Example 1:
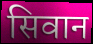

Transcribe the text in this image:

सिवान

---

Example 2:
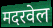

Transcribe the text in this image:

मदरवेल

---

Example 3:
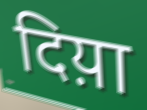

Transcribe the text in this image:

दिय़ा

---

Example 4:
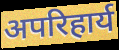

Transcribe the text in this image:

अपरिहार्य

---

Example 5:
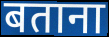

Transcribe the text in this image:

बताना